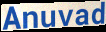
Anuvad